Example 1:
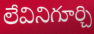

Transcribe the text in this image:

లేవినిగూర్చి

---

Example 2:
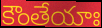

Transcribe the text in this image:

కౌంతేయాః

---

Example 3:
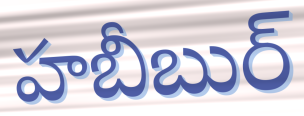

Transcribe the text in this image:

హబీబుర్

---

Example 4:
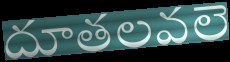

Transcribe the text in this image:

దూతలవలె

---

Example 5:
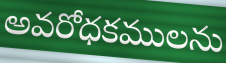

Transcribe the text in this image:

అవరోధకములను